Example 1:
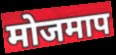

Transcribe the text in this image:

मोजमाप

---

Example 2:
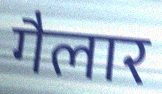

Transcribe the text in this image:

गैलार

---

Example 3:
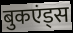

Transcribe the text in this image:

बुकएंड्स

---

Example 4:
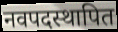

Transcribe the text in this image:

नवपदस्थापित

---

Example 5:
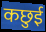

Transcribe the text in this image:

कछुई